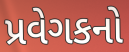
પ્રવેગકનો